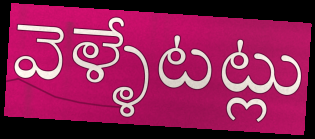
వెళ్ళేటట్లు